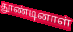
தூண்டினாள்